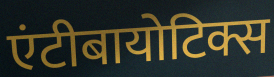
एंटीबायोटिक्स